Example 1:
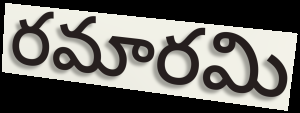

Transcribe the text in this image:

రమారమి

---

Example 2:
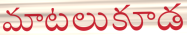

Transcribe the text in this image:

మాటలుకూడ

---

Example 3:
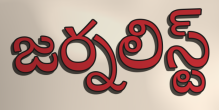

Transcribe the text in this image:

జర్నలిస్ట్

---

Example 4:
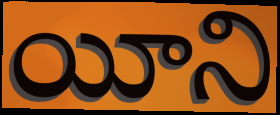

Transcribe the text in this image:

యీని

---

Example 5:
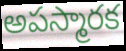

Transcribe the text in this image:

అపస్మారక